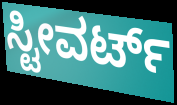
ಸ್ಟೀವರ್ಟ್